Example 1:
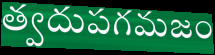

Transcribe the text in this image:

త్వదుపగమజం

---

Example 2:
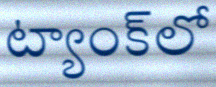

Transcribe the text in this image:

ట్యాంక్‌లో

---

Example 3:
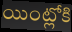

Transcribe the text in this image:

యింట్లోకి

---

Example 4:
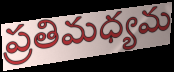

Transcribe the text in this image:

ప్రతిమధ్యమ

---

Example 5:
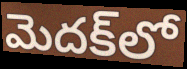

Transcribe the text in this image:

మెదక్‌లో